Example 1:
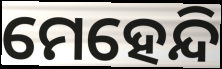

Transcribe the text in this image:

ମେହେନ୍ଦି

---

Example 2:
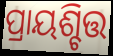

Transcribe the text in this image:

ପ୍ରାୟଶ୍ଚିତ୍ତ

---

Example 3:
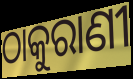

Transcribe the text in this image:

ଠାକୁରାଣୀ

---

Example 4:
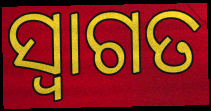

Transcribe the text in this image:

ସ୍ବାଗତ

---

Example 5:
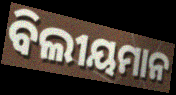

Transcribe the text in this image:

ବିଲୀୟମାନ